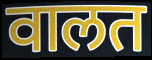
वालत